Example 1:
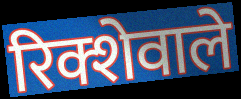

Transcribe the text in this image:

रिक्‍शेवाले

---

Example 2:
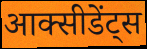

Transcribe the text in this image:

आक्सीडेंट्स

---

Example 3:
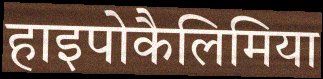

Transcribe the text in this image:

हाइपोकैलिमिया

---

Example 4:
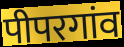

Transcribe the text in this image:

पीपरगांव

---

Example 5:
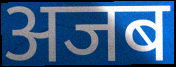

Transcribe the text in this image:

अजब